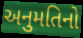
અનુમતિનો